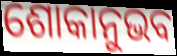
ଶୋକାନୁଭବ